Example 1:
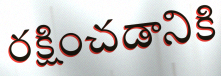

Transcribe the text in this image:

రక్షించడానికి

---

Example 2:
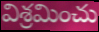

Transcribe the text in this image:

విశ్రమించు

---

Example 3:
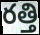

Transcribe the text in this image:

రత్తి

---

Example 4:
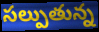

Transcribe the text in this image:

సల్పుతున్న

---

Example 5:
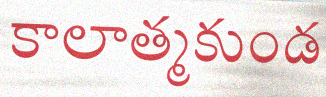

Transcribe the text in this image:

కాలాత్మకుండ